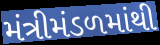
મંત્રીમંડળમાંથી